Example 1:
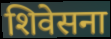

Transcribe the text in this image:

शिवेसना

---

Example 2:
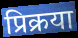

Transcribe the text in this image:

प्रिक्रया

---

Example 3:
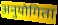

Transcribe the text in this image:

अनुयोगिता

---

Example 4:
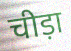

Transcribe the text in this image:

चीड़ा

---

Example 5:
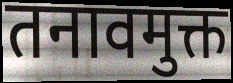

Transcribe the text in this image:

तनावमुक्त